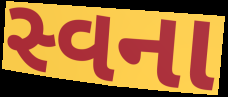
સ્વના